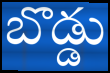
బొడ్డు